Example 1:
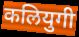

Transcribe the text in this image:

कलियुगी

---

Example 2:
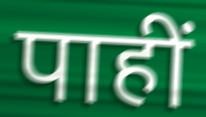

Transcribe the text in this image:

पाहीं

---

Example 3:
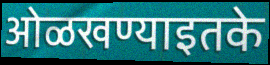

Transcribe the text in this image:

ओळखण्याइतके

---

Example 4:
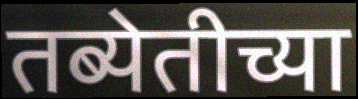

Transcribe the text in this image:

तब्येतीच्या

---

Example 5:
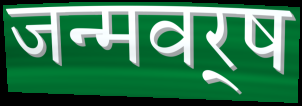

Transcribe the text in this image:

जन्मवर्ष